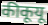
कीकूयू